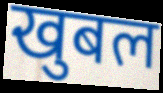
खुबल